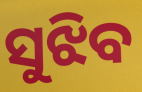
ସୁଝିବ